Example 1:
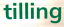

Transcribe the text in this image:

tilling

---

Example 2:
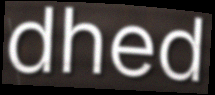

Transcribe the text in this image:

dhed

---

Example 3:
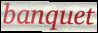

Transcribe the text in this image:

banquet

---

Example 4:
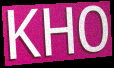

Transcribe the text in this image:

KHO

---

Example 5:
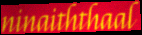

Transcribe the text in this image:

ninaiththaal